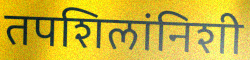
तपशिलांनिशी